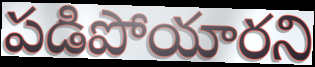
పడిపోయారని